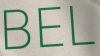
BEL